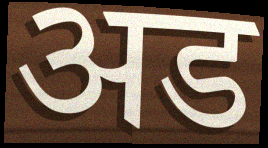
अड